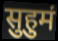
सुहुमं